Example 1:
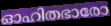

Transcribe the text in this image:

ഓഹിതഭാരോ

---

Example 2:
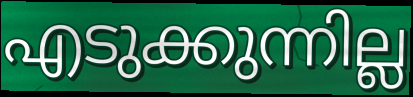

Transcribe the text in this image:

എടുക്കുന്നില്ല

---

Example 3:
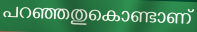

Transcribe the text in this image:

പറഞ്ഞതുകൊണ്ടാണ്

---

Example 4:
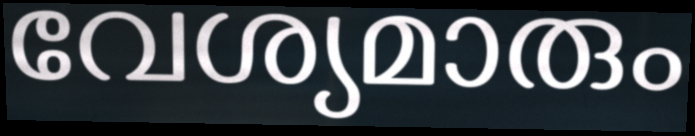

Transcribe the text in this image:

വേശ്യമാരും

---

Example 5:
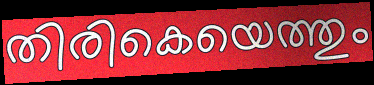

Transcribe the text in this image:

തിരികെയെത്തും